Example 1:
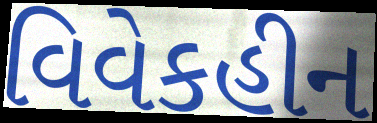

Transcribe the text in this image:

વિવેકહીન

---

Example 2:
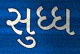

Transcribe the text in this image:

સુધ્ધ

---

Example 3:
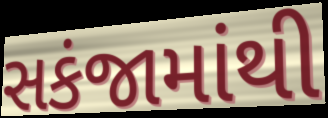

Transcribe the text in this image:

સકંજામાંથી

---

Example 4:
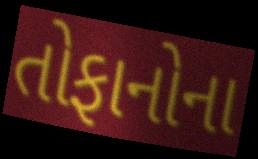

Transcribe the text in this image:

તોફાનોના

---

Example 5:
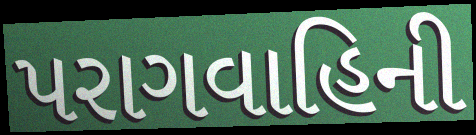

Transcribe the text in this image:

પરાગવાહિની